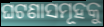
ଘଟଣାସମୂହକୁ